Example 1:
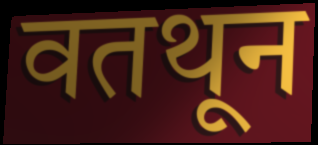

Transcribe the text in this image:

वतथून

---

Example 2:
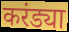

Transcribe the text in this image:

करंड्या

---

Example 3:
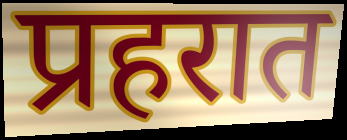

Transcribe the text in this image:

प्रहरात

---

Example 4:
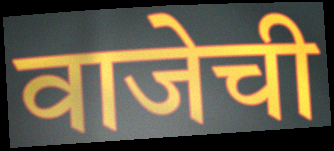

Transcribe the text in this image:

वाजेची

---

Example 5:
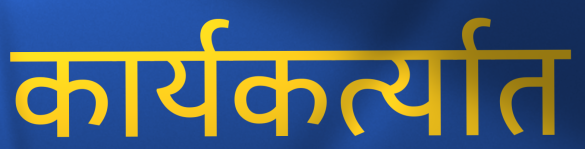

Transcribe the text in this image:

कार्यकर्त्यात